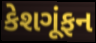
કેશગૂંફન